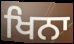
ਖਿਨਾ